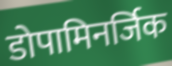
डोपामिनर्जिक